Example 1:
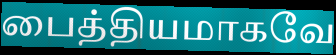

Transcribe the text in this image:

பைத்தியமாகவே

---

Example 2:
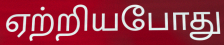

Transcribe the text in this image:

ஏற்றியபோது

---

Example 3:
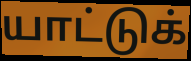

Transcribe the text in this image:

யாட்டுக்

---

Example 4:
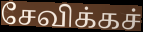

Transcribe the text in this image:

சேவிக்கச்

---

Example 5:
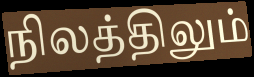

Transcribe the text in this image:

நிலத்திலும்